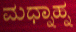
ಮಧ್ನಾಹ್ನ